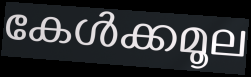
കേൾക്കമൂല